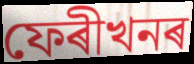
ফেৰীখনৰ